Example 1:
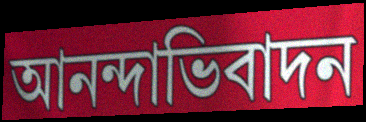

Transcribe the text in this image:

আনন্দাভিবাদন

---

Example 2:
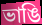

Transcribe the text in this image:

ভাঙি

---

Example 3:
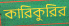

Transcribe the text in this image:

কারিকুরির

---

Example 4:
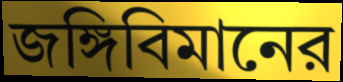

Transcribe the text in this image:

জঙ্গিবিমানের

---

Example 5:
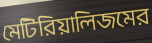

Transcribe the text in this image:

মেটিরিয়ালিজমের